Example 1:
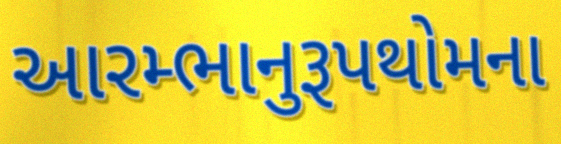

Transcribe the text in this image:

આરમ્ભાનુરૂપથોમના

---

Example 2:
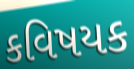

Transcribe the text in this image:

કવિષયક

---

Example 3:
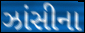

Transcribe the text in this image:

ઝાંસીના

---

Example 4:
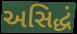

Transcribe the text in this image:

અસિદ્ધં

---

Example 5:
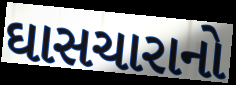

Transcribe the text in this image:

ઘાસચારાનો